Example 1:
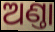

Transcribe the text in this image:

ଅଣ୍ତା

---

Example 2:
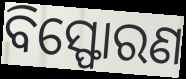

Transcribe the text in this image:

ବିସ୍ଫୋରଣ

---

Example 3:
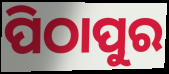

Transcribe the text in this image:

ପିଠାପୁର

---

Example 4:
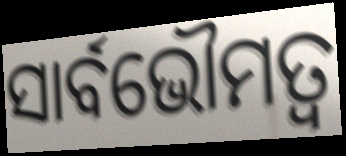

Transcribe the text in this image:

ସାର୍ବଭୌମତ୍ଵ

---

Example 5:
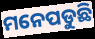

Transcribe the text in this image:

ମନେପଡୁଛି